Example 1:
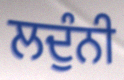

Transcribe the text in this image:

ਲਦੁੰਨੀ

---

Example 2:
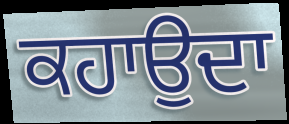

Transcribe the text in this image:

ਕਹਾਉਦਾ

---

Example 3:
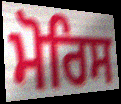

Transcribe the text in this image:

ਮੋਰਿਸ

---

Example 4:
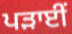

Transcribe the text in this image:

ਪੜਾਈਂ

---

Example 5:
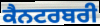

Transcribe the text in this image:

ਕੈਨਟਰਬਰੀ